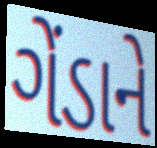
ગેંડાને